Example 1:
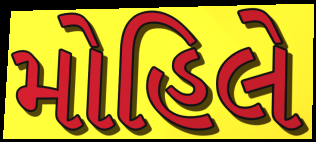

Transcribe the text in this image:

મોહિલે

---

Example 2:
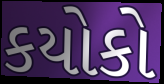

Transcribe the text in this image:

કયોકો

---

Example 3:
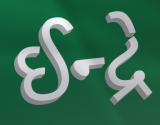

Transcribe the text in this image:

ઈન્દ્રે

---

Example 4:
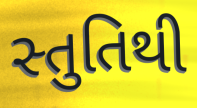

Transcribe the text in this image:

સ્તુતિથી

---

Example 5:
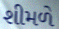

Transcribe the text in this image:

શીમળે